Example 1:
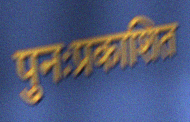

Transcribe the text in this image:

पुनःप्रकाशित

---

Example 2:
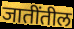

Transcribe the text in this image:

जातींतील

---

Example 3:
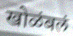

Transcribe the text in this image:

खोळंबलं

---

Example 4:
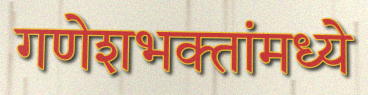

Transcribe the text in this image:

गणेशभक्तांमध्ये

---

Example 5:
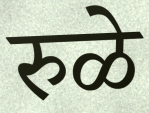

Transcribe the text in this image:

रुळे